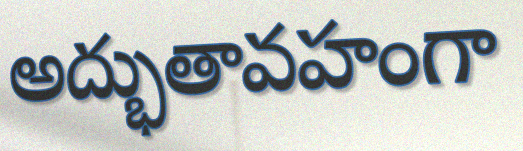
అద్భుతావహంగా